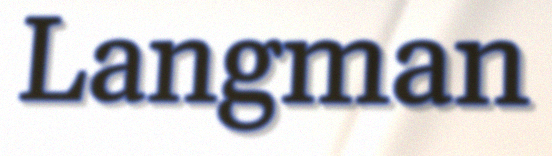
Langman